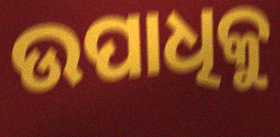
ଉପାଧିକୁ